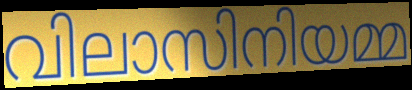
വിലാസിനിയമ്മ